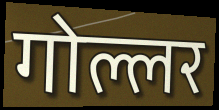
गोल्लर